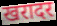
खरादर